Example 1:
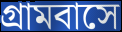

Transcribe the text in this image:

গ্রামবাসে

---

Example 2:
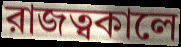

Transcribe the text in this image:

রাজত্বকালে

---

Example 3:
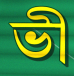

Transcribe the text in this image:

ভী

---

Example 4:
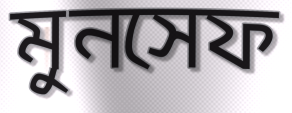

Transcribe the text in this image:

মুনসেফ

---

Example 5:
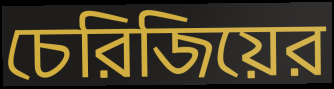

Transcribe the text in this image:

চেরিজিয়ের